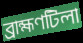
ব্রাহ্মণটিলা